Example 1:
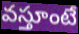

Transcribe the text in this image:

వస్తూంటే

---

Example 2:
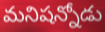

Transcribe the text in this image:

మనిషన్నోడు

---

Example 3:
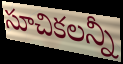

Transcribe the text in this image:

సూచికలన్నీ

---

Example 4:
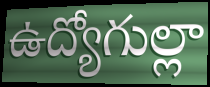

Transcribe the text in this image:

ఉద్యోగుల్లా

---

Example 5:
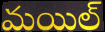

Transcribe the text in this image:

మయిల్